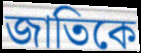
জাতিকে